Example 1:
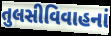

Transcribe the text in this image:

તુલસીવિવાહનાં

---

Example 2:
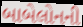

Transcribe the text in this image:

બાબેલોનની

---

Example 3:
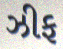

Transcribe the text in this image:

ઝીફ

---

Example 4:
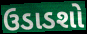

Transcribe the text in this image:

ઉડાડશો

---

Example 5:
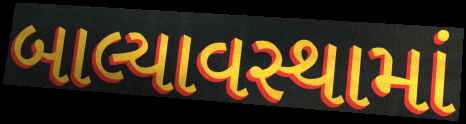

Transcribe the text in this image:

બાલ્યાવસ્થામાં